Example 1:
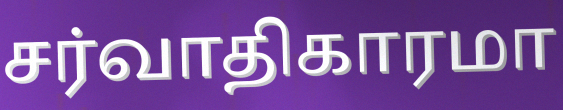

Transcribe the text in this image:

சர்வாதிகாரமா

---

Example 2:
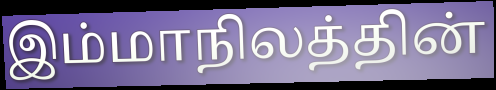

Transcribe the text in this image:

இம்மாநிலத்தின்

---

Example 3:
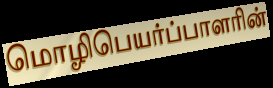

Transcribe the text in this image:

மொழிபெயர்ப்பாளரின்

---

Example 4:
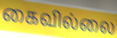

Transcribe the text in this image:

கைவில்லை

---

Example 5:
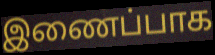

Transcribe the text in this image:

இணைப்பாக